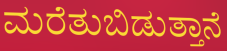
ಮರೆತುಬಿಡುತ್ತಾನೆ